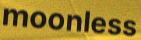
moonless